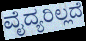
ವೈದ್ಯರಿಲ್ಲದೆ